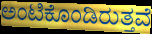
ಅಂಟಿಕೊಂಡಿರುತ್ತವೆ